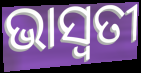
ଭାସ୍ବତୀ